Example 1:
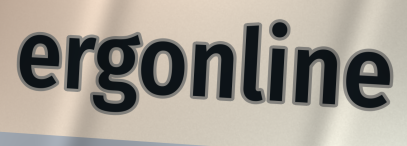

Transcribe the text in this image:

ergonline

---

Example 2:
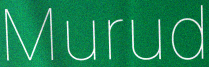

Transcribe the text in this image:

Murud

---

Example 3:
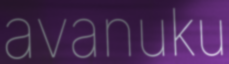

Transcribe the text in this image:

avanuku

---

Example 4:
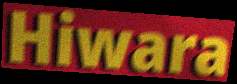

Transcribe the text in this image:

Hiwara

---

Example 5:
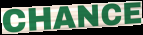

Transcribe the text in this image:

CHANCE